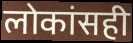
लोकांसही